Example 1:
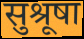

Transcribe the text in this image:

सुश्रूषा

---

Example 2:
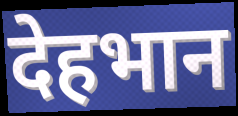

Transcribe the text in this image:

देहभान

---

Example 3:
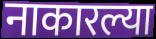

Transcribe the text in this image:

नाकारल्या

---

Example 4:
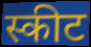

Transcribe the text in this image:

स्कीट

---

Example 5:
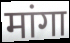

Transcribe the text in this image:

मांगा